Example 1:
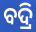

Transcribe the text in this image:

ବଦ୍ରି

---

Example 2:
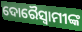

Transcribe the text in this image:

ଦୋରୈସ୍ବାମୀଙ୍କ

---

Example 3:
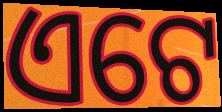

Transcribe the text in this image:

ଏଟେ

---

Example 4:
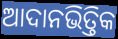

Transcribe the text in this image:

ଆଦାନଭିତ୍ତିକ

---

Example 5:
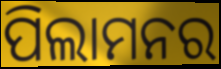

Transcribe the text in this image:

ପିଲାମନର